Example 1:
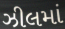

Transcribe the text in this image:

ઝીલમાં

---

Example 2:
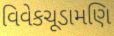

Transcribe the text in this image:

વિવેકચૂડામણિ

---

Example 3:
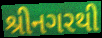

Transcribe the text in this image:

શ્રીનગરથી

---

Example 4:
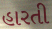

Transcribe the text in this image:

હારતી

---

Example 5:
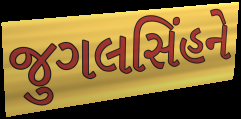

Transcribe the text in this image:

જુગલસિંહને